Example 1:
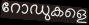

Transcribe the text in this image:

റോഡുകളെ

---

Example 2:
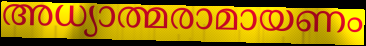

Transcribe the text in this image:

അധ്യാത്മരാമായണം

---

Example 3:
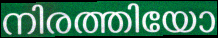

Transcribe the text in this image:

നിരത്തിയോ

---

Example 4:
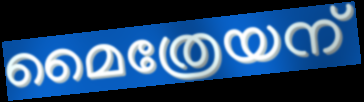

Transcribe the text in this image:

മൈത്രേയന്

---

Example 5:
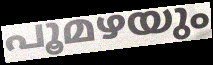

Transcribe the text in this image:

പൂമഴയും